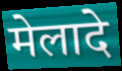
मेलादे